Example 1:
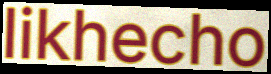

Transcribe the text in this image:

likhecho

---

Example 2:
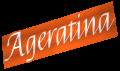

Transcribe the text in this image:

Ageratina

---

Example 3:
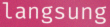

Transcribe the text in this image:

langsung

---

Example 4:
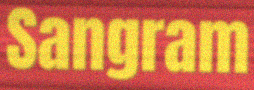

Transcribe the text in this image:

Sangram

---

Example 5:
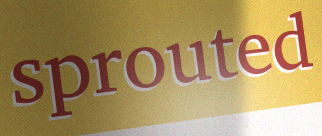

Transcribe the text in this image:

sprouted